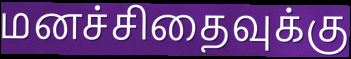
மனச்சிதைவுக்கு